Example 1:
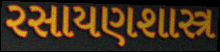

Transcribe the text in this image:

રસાયણશાસ્ત્ર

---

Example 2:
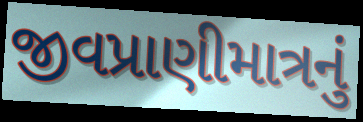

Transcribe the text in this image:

જીવપ્રાણીમાત્રનું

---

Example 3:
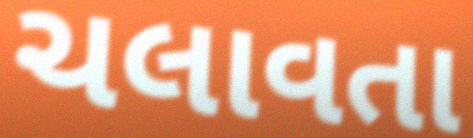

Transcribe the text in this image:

ચલાવતા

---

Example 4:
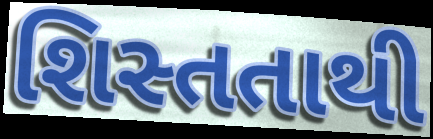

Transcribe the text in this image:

શિસ્તતાથી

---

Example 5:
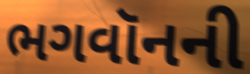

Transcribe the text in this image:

ભગવૉનની